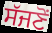
ਸੱਜਣੋਂ